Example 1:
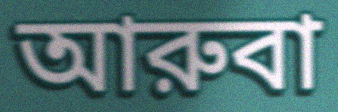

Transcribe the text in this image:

আরুবা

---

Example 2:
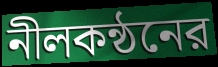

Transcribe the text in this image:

নীলকন্ঠনের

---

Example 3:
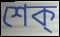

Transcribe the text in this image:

শেক্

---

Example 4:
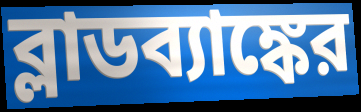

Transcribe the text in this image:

ব্লাডব্যাঙ্কের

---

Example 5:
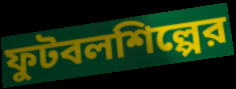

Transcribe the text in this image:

ফুটবলশিল্পের